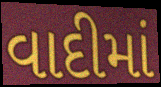
વાદીમાં